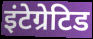
इंटेग्रेटिड